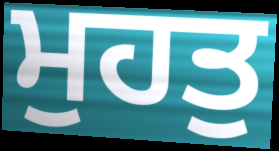
ਮੁਹਤੁ